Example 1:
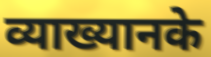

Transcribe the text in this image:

व्याख्यानके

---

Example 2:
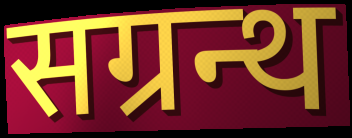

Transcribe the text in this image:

सग्रन्थ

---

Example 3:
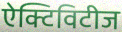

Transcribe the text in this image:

ऐक्टिविटीज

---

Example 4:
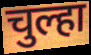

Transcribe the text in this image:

चुल्हा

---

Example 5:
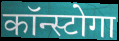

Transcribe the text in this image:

कॉन्स्टोगा